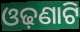
ଓଢ଼ଣାଟି